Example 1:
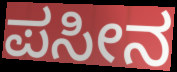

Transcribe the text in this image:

ಪಸೀನ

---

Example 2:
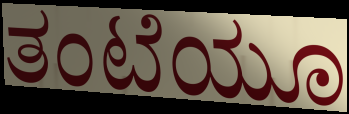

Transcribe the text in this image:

ತಂಟೆಯೂ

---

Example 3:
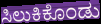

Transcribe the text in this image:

ಸಿಲುಕಿಕೊಂಡು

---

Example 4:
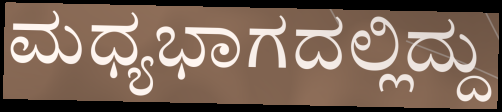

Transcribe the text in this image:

ಮಧ್ಯಭಾಗದಲ್ಲಿದ್ದು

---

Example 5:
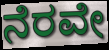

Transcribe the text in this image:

ನೆರವೇ